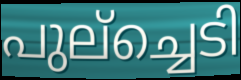
പുല്ച്ചെടി